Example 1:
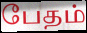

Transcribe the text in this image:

பேதம்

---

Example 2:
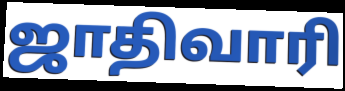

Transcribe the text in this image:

ஜாதிவாரி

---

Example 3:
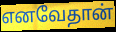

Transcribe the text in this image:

எனவேதான்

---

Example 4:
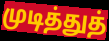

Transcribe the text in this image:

முடித்துத்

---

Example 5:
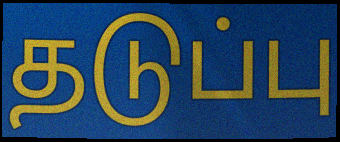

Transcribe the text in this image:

தடுப்பு